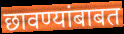
छावण्यांबाबत